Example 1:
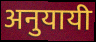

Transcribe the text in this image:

अनुयायी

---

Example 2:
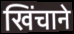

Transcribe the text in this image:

खिंचाने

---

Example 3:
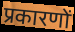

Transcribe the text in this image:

प्रकारणों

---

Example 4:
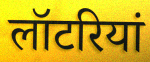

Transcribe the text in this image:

लॉटरियां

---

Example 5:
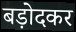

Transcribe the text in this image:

बड़ोदकर